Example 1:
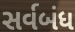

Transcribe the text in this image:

સર્વબંધ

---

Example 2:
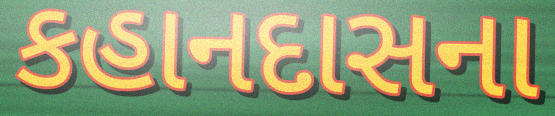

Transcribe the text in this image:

કહાનદાસના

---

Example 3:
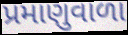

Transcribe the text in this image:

પ્રમાણુવાળા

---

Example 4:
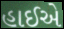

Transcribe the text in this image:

હાઈએ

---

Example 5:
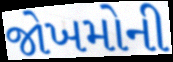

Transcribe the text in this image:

જોખમોની